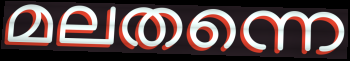
മലതന്നെ